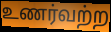
உணர்வற்ற